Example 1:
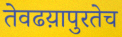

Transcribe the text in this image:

तेवढय़ापुरतेच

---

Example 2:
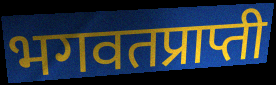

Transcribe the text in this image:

भगवतप्राप्ती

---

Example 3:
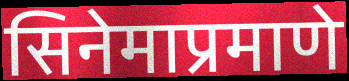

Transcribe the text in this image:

सिनेमाप्रमाणे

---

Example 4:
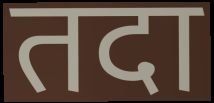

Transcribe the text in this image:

तदा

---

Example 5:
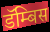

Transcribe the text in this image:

डॅम्बिस